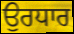
ਉਰਧਾਰ